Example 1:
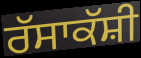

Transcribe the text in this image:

ਰੱਸਾਕੱਸ਼ੀ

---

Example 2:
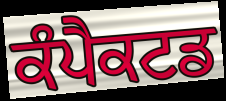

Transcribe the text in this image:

ਕੰਪੈਕਟਡ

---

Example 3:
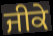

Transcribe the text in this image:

ਜੀਕੇ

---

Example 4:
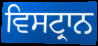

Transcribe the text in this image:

ਵਿਸਟ੍ਰਾਨ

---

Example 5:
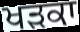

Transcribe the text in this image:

ਖੜਕਾ